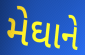
મેઘાને